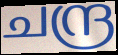
ചന്ദ്ര